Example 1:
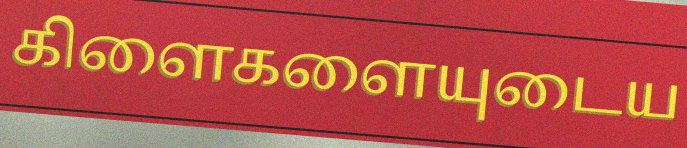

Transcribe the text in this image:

கிளைகளையுடைய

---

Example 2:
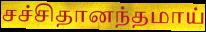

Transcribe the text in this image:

சச்சிதானந்தமாய்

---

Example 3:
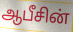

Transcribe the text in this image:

ஆபீசின்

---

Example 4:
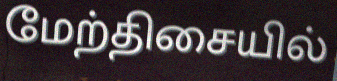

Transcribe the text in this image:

மேற்திசையில்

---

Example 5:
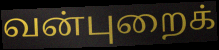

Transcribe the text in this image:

வன்புறைக்